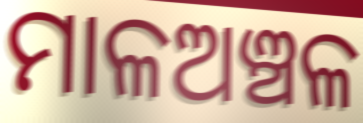
ମାଳଅଞ୍ଚଳ